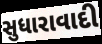
સુધારાવાદી